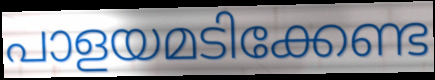
പാളയമടിക്കേണ്ട